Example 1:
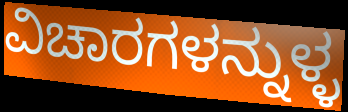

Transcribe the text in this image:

ವಿಚಾರಗಳನ್ನುಳ್ಳ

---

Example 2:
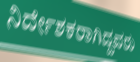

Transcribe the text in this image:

ನಿರ್ದೇಶಕರಾಗಿದ್ದವರು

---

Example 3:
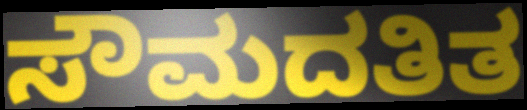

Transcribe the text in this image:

ಸೌಮದತಿತ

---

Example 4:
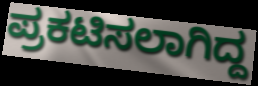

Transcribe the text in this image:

ಪ್ರಕಟಿಸಲಾಗಿದ್ದ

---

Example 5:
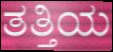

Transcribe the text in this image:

ತತ್ತಿಯ